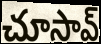
చూసావ్